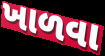
ખાળવા